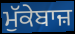
ਮੁੱਕੇਬਾਜ਼